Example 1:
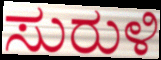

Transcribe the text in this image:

ಸುರುಳಿ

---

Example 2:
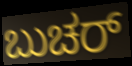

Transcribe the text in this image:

ಬುಚರ್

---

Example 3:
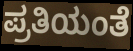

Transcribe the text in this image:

ಪ್ರತಿಯಂತೆ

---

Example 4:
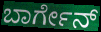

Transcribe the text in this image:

ಬಾರ್ಗೇನ್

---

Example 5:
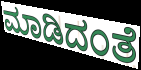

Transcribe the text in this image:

ಮಾಡಿದಂತೆ